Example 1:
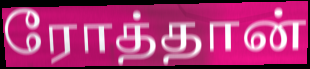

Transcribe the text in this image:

ரோத்தான்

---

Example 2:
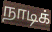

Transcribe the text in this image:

நாடிக்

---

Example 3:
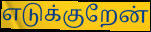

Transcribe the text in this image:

எடுக்குறேன்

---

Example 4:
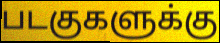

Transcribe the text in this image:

படகுகளுக்கு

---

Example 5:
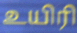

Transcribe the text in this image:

உயிரி